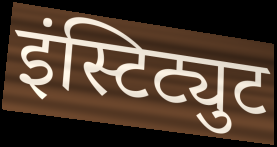
इंस्टिट्युट